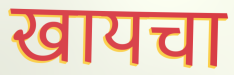
खायचा